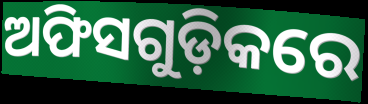
ଅଫିସଗୁଡ଼ିକରେ